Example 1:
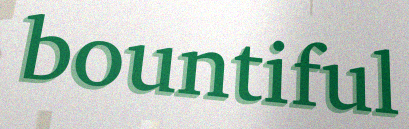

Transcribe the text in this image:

bountiful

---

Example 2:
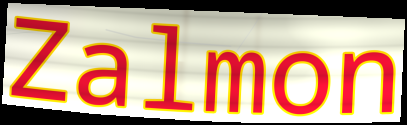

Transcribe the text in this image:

Zalmon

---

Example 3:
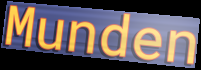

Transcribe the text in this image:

Munden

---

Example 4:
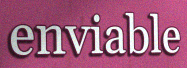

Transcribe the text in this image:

enviable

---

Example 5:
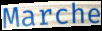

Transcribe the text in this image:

Marche